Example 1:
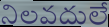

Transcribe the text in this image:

నిలవదులే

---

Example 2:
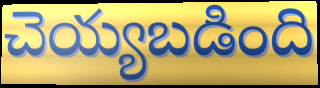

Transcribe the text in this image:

చెయ్యబడింది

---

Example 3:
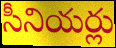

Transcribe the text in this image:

సీనియర్లు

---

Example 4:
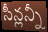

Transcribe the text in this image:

సీన్లన్నీ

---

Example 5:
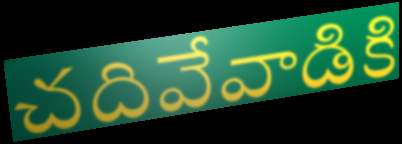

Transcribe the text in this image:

చదివేవాడికి